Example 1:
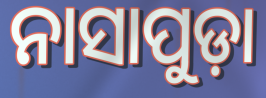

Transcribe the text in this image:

ନାସାପୁଡ଼ା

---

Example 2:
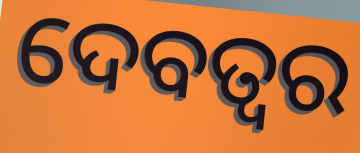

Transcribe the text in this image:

ଦେବତ୍ଵର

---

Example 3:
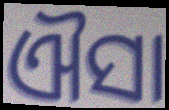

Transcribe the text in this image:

ଐସା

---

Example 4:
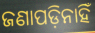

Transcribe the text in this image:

ଜଣାପଡ଼ିନାହିଁ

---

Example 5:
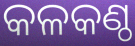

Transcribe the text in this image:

କଳକଣ୍ଠ